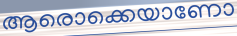
ആരൊക്കെയാണോ